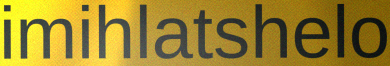
imihlatshelo